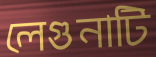
লেগুনাটি